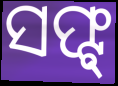
ସଫ୍ଟ୍